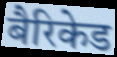
बैरिकेड